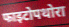
फाइटोपथोरा